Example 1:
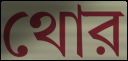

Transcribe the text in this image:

থোর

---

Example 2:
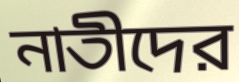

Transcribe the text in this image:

নাতীদের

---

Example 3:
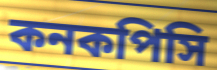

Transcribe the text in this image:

কনকপিসি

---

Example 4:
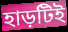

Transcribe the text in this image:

হাড়টিই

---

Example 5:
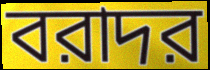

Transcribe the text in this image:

বরাদর